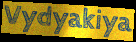
Vydyakiya